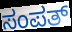
ಸಂಪತ್